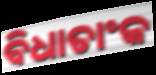
ବିଧାତାଂକ